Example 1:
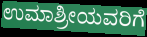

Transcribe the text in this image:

ಉಮಾಶ್ರೀಯವರಿಗೆ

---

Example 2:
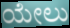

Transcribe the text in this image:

ಯೇಲು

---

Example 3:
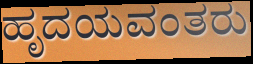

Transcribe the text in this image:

ಹೃದಯವಂತರು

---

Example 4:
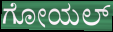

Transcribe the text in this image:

ಗೋಯಲ್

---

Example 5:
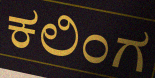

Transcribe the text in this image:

ಕಲಿಂಗ